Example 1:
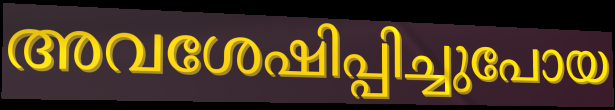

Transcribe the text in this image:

അവശേഷിപ്പിച്ചുപോയ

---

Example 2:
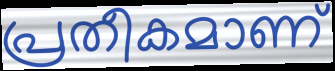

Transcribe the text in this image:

പ്രതീകമാണ്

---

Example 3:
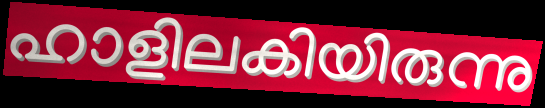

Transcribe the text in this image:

ഹാളിലകിയിരുന്നു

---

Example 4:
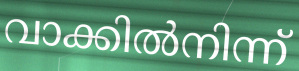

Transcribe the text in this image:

വാക്കിൽനിന്ന്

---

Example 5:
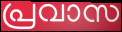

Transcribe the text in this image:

പ്രവാസ